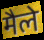
मैले